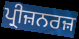
ਪ੍ਰੀਜ਼ਨਰਜ਼